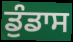
ਡੁੰਡਾਸ